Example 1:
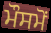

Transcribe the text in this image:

ਮੌਸਮੋਂ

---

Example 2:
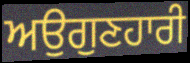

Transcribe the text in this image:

ਅਉਗੁਣਹਾਰੀ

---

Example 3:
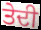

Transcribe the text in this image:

ਤੇਦੀ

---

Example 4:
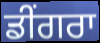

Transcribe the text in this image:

ਡੀਂਗਰਾ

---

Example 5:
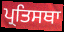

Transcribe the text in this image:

ਪ੍ਰਤਿਸਥਾ